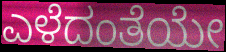
ಎಳೆದಂತೆಯೇ